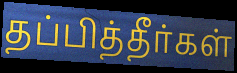
தப்பித்தீர்கள்